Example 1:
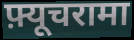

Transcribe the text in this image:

फ़्यूचरामा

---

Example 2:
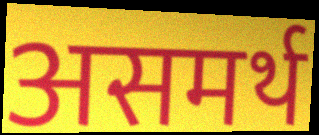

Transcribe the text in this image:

असमर्थ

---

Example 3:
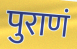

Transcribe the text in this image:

पुराणं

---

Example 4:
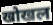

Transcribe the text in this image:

खोखल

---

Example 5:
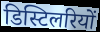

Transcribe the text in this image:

डिस्टिलरियों